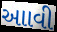
આાવી